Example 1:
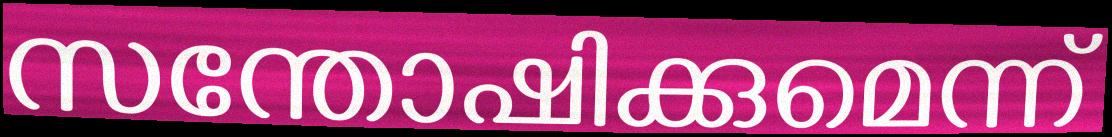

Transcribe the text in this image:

സന്തോഷിക്കുമെന്ന്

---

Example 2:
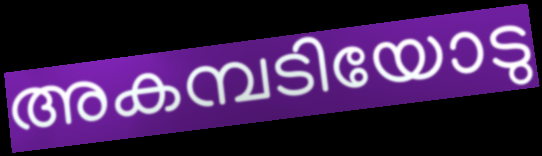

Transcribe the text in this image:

അകമ്പടിയോടു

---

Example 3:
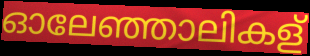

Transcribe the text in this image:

ഓലേഞ്ഞാലികള്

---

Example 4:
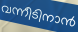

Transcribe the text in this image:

വന്നീടിനാൻ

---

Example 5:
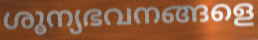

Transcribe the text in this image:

ശൂന്യഭവനങ്ങളെ